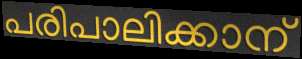
പരിപാലിക്കാന്